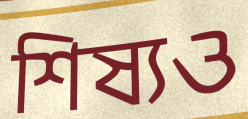
শিষ্যও